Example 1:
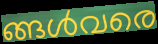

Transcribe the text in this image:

ങ്ങൾവരെ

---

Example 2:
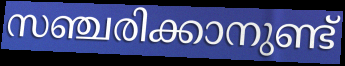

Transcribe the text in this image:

സഞ്ചരിക്കാനുണ്ട്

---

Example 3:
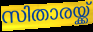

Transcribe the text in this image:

സിതാരയ്ക്ക്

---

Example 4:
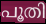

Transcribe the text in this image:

പൂതി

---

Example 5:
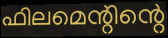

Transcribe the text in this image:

ഫിലമെന്റിന്റെ